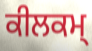
ਕੀਲਕਮ੍